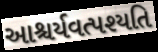
આશ્ચર્યવત્પશ્યતિ